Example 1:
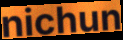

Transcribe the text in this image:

nichun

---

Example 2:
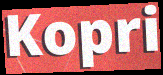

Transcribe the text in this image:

Kopri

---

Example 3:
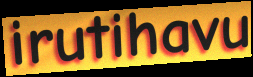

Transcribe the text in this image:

irutihavu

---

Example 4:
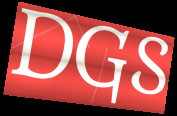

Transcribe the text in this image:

DGS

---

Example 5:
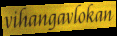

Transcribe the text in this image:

vihangavlokan